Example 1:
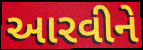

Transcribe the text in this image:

આરવીને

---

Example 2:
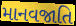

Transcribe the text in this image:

માનવજાતિ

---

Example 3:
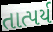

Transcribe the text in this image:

તાત્પર્ય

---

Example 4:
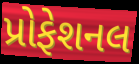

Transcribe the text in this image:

પ્રોફેશનલ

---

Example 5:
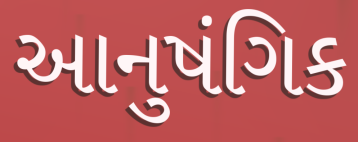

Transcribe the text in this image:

આનુષંગિક